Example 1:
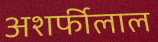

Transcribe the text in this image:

अशर्फीलाल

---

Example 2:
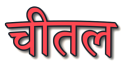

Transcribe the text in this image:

चीतल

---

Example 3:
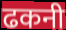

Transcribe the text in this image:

ढकनी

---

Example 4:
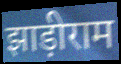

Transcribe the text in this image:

झाड़ीराम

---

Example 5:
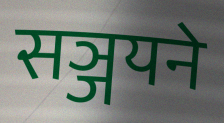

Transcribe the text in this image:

सञ्जयने